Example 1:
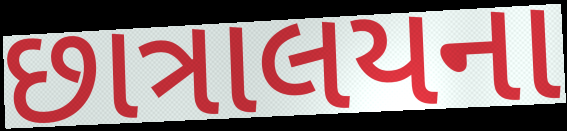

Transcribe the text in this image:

છાત્રાલયના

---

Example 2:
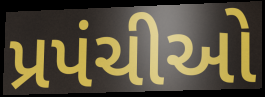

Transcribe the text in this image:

પ્રપંચીઓ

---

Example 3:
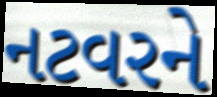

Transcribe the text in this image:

નટવરને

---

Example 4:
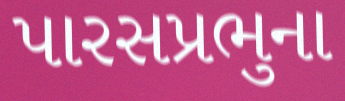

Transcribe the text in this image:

પારસપ્રભુના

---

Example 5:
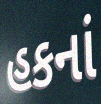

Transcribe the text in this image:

હકનાં